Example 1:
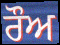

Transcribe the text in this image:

ਰੌਅ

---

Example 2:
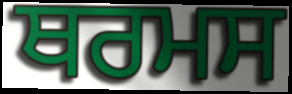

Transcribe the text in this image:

ਥਰਮਸ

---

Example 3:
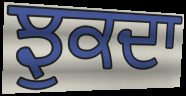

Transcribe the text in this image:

ਝੁਕਦਾ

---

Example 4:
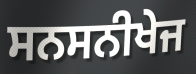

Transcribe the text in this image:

ਸਨਸਨੀਖੇਜ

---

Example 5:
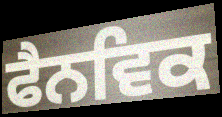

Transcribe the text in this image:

ਫੈਨਵਿਕ